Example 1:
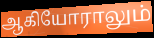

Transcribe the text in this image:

ஆகியோராலும்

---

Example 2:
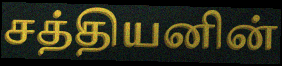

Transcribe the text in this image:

சத்தியனின்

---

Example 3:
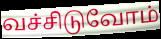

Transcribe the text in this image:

வச்சிடுவோம்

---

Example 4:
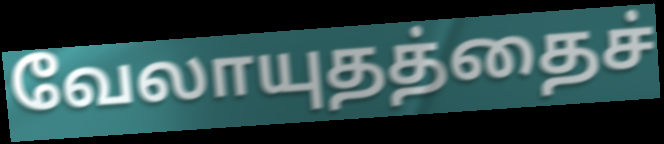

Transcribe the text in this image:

வேலாயுதத்தைச்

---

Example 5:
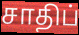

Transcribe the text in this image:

சாதிப்